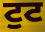
ਟੁਟ